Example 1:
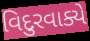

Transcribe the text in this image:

વિદુરવાક્યે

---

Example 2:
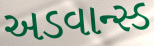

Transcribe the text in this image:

અડવાન્સ્ડ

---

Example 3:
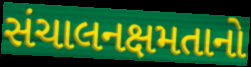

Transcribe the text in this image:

સંચાલનક્ષમતાનો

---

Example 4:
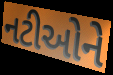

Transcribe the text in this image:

નટીઓને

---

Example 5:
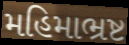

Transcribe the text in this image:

મહિમાભ્રષ્ટ